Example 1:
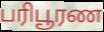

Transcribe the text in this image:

பரிபூரண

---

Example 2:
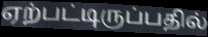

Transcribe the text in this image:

ஏற்பட்டிருப்பதில்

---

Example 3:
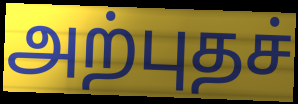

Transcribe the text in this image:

அற்புதச்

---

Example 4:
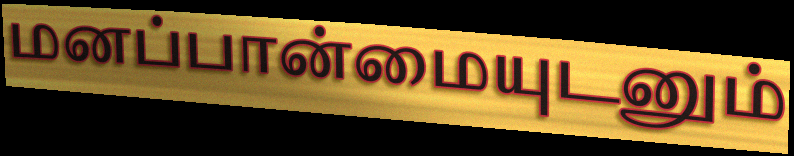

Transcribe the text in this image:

மனப்பான்மையுடனும்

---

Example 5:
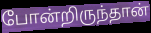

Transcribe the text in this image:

போன்றிருந்தான்